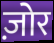
ज़ोर